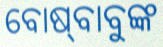
ବୋଷ୍‍ବାବୁଙ୍କ